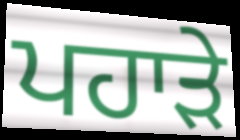
ਪਹਾੜੇ